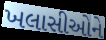
ખલાસીઓને